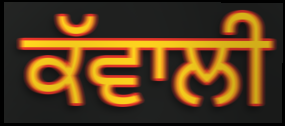
ਕੱਵਾਲੀ